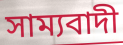
সাম্যবাদী